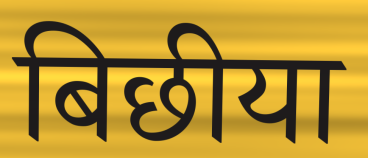
बिछीया